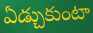
ఏడ్చుకుంటా